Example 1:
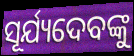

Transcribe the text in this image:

ସୂର୍ଯ୍ୟଦେବଙ୍କୁ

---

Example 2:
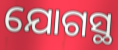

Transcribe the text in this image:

ଯୋଗସ୍ଥ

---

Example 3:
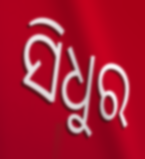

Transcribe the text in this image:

ସିଧୁର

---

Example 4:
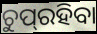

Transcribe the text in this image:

ଚୁପ୍‌ରହିବା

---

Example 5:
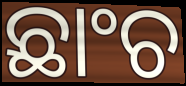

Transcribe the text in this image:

ଛାଂଚ